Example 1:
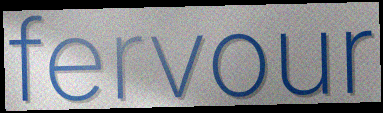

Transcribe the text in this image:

fervour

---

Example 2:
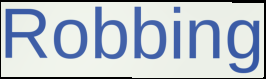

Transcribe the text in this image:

Robbing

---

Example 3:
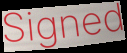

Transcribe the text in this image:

Signed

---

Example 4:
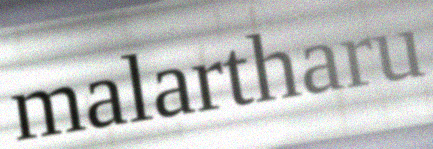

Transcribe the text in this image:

malartharu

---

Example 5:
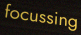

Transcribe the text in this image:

focussing